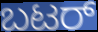
ಬಟರ್